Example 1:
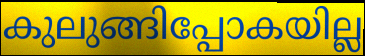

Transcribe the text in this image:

കുലുങ്ങിപ്പോകയില്ല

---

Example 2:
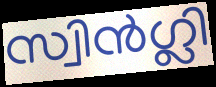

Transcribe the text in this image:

സ്വിൻഗ്ലി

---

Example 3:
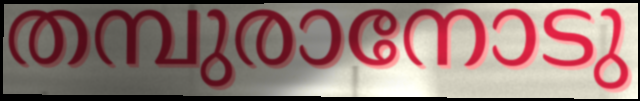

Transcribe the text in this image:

തമ്പുരാനോടു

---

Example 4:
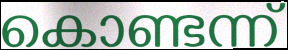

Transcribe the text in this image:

കൊണ്ടന്ന്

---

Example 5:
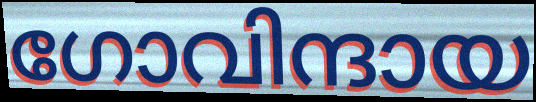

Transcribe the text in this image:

ഗോവിന്ദായ